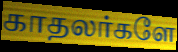
காதலர்களே